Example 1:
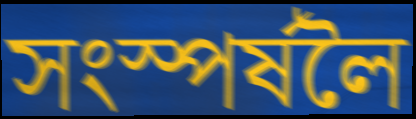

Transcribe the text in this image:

সংস্পৰ্ষলৈ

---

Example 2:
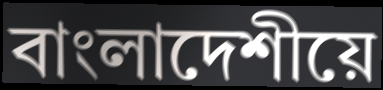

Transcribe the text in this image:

বাংলাদেশীয়ে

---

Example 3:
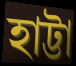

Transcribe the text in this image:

হাট্টা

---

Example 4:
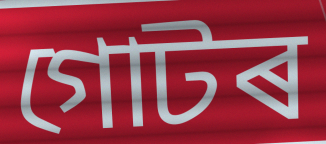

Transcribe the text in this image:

গোটৰ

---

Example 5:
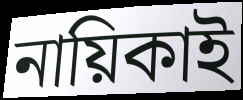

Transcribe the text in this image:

নায়িকাই